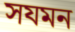
সযমন